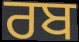
ਰਬ